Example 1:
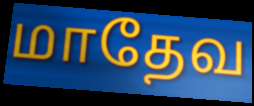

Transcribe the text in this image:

மாதேவ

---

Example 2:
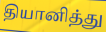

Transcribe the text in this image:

தியானித்து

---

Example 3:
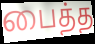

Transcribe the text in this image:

பைத்த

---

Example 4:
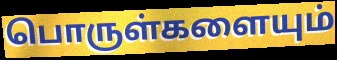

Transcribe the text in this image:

பொருள்களையும்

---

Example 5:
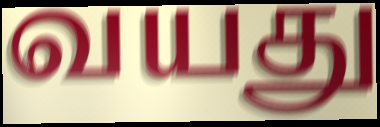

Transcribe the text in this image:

வயது